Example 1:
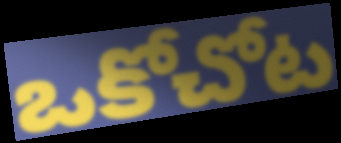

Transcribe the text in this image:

ఒకోచోట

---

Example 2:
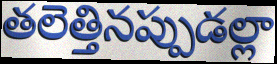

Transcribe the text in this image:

తలెత్తినప్పుడల్లా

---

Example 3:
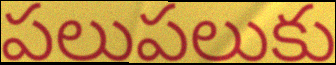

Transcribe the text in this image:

పలుపలుకు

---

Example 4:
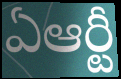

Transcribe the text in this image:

ఏఆర్టీ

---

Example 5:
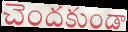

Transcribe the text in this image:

చెందకుండా